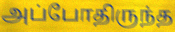
அப்போதிருந்த